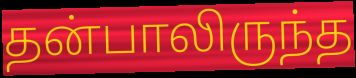
தன்பாலிருந்த